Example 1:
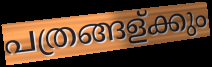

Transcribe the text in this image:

പത്രങ്ങള്ക്കും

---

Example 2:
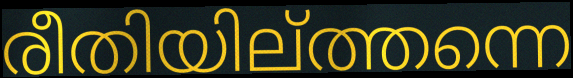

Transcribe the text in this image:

രീതിയില്ത്തന്നെ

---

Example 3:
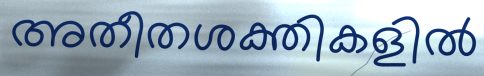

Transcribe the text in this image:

അതീതശക്തികളിൽ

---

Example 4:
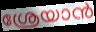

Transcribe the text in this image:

ശ്രേയാൻ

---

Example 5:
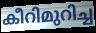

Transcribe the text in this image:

കീറിമുറിച്ച